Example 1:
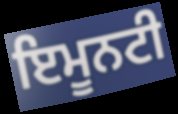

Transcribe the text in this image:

ਇਮੂਨਟੀ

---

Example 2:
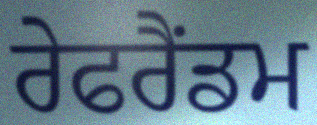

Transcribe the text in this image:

ਰੇਫਰੈਂਡਮ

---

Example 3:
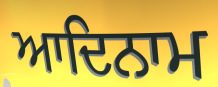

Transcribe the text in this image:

ਆਦਿਨਾਮ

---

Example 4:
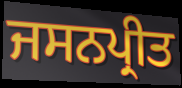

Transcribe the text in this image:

ਜਸਨਪ੍ਰੀਤ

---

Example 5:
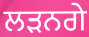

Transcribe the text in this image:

ਲੜਨਗੇ